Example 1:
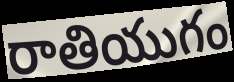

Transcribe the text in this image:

రాతియుగం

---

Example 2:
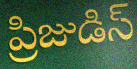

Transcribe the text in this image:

ప్రిజుడిస్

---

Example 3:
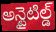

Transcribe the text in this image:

అన్టైటిల్డ్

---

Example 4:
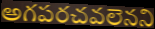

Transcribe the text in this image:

అగపరచవలెనని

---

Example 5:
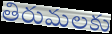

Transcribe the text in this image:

తిరుమలకు